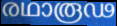
രഥാരൂഢ